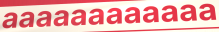
aaaaaaaaaaaa